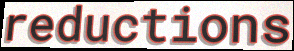
reductions